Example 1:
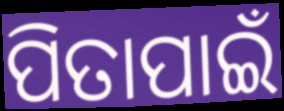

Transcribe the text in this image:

ପିତାପାଇଁ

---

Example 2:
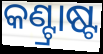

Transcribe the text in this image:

କଣ୍ଟ୍ରାଷ୍ଟ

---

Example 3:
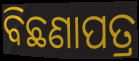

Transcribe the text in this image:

ବିଛଣାପତ୍ର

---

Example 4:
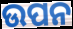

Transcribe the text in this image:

ଉପନ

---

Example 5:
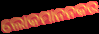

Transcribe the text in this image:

ଲୋକମାନନକର